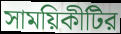
সাময়িকীটির